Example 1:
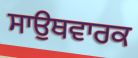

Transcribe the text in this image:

ਸਾਉਥਵਾਰਕ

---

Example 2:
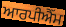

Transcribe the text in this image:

ਆਰਪੀਐੱਮ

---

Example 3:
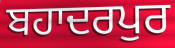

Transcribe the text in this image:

ਬਹਾਦਰਪੁਰ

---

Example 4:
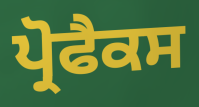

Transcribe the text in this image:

ਪ੍ਰੋਫੈਕਸ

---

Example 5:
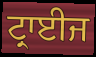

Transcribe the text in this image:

ਟ੍ਰਾਈਜ